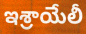
ఇశ్రాయేలీ